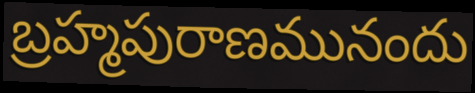
బ్రహ్మపురాణమునందు